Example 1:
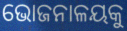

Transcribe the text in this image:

ଭୋଜନାଳୟକୁ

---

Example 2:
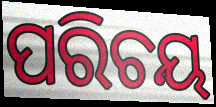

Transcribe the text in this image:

ପରିଚୟ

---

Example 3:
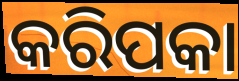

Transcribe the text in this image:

କରିପକା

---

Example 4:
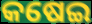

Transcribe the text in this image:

କଷେଇ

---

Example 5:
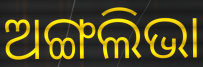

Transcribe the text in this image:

ଅଙ୍ଗଲିଭା